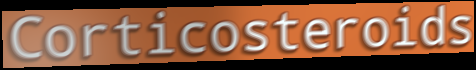
Corticosteroids